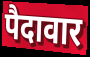
पैदावार